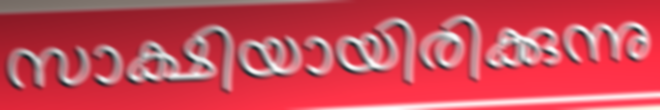
സാക്ഷിയായിരിക്കുന്നു